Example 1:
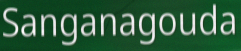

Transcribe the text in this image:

Sanganagouda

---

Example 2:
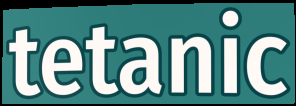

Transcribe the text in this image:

tetanic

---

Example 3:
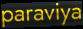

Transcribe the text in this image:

paraviya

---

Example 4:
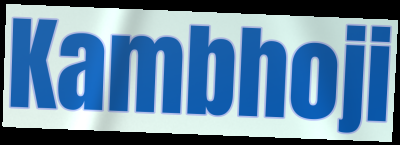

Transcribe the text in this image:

Kambhoji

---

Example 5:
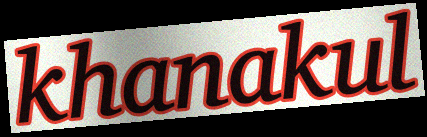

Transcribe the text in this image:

khanakul